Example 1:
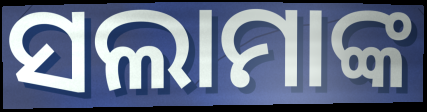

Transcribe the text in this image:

ସଲାମାଙ୍କ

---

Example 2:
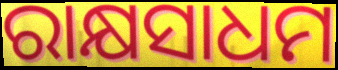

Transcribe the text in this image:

ରାକ୍ଷସାଧମ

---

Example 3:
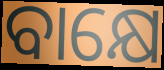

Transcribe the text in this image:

ବାକ୍ଷେ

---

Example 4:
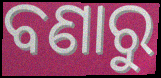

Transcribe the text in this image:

ବଣାରୁ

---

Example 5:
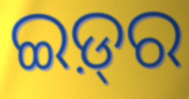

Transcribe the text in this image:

ଇଡ଼୍‍ର